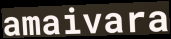
amaivara